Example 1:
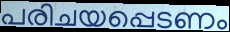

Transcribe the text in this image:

പരിചയപ്പെടണം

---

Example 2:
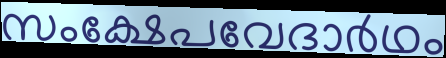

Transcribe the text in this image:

സംക്ഷേപവേദാർഥം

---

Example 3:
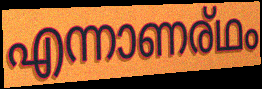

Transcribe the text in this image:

എന്നാണര്ഥം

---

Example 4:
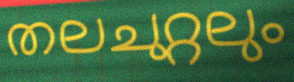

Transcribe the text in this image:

തലചുറ്റലും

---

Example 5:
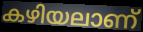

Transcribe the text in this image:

കഴിയലാണ്